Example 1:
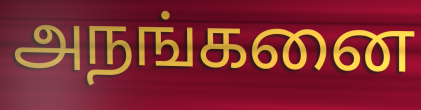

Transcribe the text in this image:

அநங்கனை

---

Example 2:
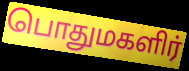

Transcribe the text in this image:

பொதுமகளிர்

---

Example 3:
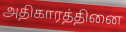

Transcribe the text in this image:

அதிகாரத்தினை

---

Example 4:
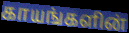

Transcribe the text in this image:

காயங்களின்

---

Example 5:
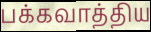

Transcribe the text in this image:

பக்கவாத்திய